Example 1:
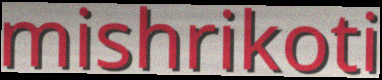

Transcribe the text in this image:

mishrikoti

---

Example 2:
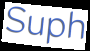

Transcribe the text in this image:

Suph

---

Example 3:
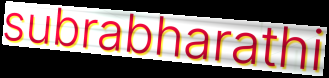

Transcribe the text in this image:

subrabharathi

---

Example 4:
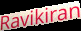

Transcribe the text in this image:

Ravikiran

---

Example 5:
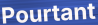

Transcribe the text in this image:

Pourtant